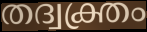
തദ്വക്ത്രം